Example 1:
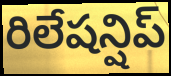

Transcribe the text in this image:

రిలేషన్షిప్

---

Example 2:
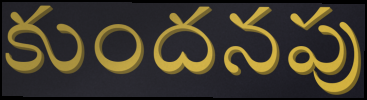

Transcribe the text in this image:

కుందనపు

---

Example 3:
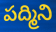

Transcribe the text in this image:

పద్మిని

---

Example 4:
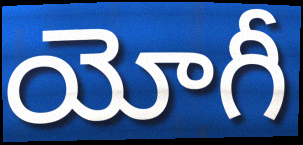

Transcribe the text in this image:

యోగీ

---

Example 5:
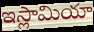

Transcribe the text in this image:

ఇస్లామియా